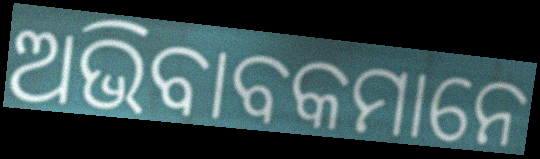
ଅଭିବାବକମାନେ